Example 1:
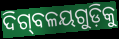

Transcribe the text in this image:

ଦିଗ୍‌ବଳୟଗୁଡ଼ିକୁ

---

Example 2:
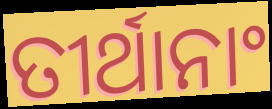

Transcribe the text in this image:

ତୀର୍ଥାନାଂ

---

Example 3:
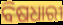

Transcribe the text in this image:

ବିଷଧାରୀ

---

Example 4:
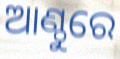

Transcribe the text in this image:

ଆଣ୍ଠୁରେ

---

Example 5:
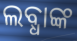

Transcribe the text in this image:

ଲବ୍ଧାଙ୍କ